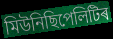
মিউনিছিপেলিটিৰ